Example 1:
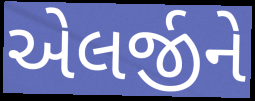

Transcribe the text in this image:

એલર્જીને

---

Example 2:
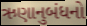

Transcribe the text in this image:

ઋણાનુબંધનો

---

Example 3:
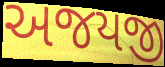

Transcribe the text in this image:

અજયજી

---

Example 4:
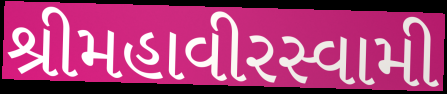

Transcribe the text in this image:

શ્રીમહાવીરસ્વામી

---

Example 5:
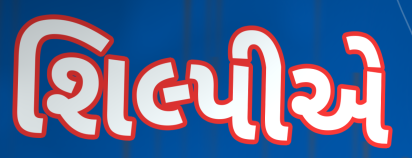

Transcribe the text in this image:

શિલ્પીએ